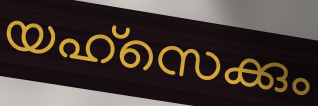
യഹ്സെക്കും